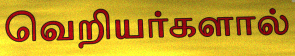
வெறியர்களால்